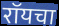
रॉयचा